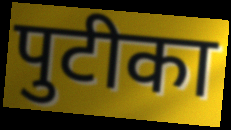
पुटीका